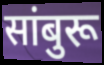
सांबुरू